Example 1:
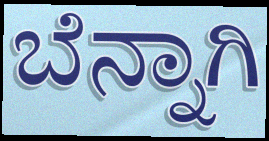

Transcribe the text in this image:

ಬೆನ್ನಾಗಿ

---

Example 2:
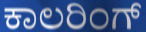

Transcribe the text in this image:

ಕಾಲರಿಂಗ್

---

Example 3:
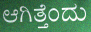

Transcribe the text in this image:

ಆಗಿತ್ತೆಂದು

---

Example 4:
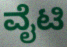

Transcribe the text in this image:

ವೈಟಿ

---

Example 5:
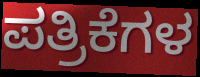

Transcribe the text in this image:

ಪತ್ರಿಕೆಗಳ